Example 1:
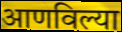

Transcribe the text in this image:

आणविल्या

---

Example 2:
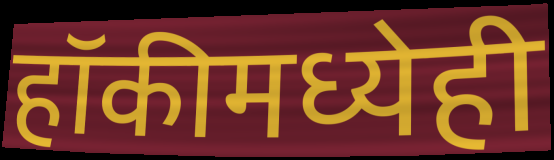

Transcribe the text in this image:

हॉकीमध्येही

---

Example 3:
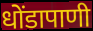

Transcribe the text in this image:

धोंडापाणी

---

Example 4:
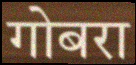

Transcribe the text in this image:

गोबरा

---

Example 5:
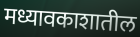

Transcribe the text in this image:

मध्यावकाशातील